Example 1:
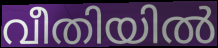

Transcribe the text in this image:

വീതിയിൽ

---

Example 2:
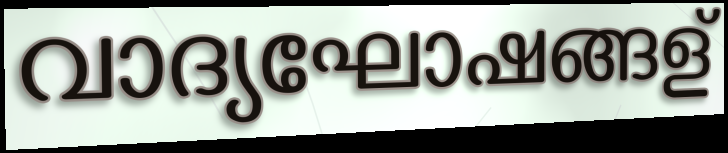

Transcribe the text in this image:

വാദ്യഘോഷങ്ങള്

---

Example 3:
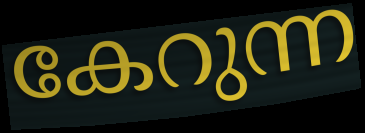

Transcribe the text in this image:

കേറുന്ന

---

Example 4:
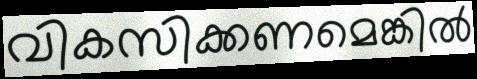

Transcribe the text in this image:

വികസിക്കണമെങ്കിൽ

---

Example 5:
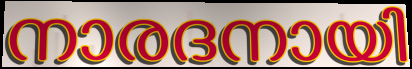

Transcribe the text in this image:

നാരദനായി